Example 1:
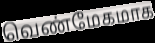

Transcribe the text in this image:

வெண்மேகமாக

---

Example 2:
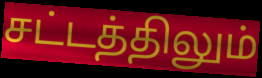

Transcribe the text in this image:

சட்டத்திலும்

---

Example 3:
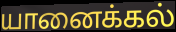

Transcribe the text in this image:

யானைக்கல்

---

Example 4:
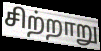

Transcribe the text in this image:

சிற்றாறு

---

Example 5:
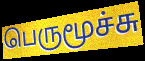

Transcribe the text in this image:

பெருமூச்சு